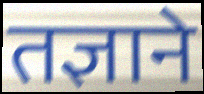
तज्ञाने